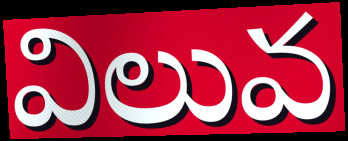
విలువ